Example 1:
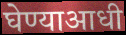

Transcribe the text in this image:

घेण्याआधी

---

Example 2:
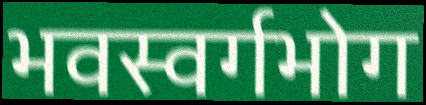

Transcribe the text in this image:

भवस्वर्गभोग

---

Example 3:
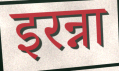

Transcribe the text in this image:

इरन्ना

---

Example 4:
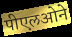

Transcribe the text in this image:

पीएलओने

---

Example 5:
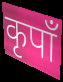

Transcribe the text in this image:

कृपाँ